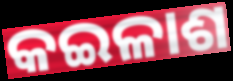
କଇଳାଶ